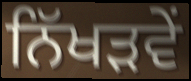
ਨਿੱਖੜਵੇਂ